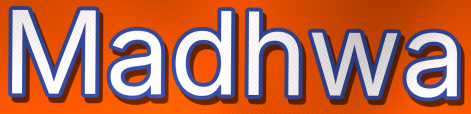
Madhwa